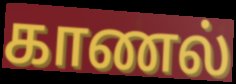
காணல்